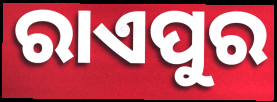
ରାଏପୁର